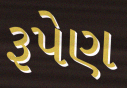
રૂપેણ